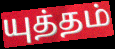
யுத்தம்